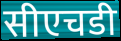
सीएचडी